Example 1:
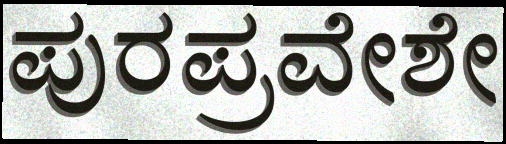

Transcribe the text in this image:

ಪುರಪ್ರವೇಶೇ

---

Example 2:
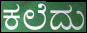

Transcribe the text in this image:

ಕಲೆದು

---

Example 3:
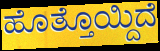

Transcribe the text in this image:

ಹೊತ್ತೊಯ್ದಿದೆ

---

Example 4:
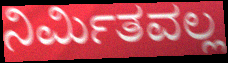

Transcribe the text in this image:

ನಿರ್ಮಿತವಲ್ಲ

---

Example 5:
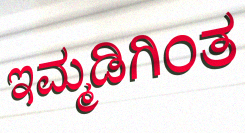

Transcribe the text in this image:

ಇಮ್ಮಡಿಗಿಂತ